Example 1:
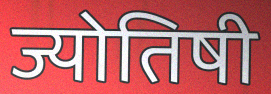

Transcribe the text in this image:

ज्योतिषी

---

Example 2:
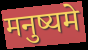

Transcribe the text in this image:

मनुष्यमे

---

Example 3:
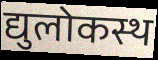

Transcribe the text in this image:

द्युलोकस्थ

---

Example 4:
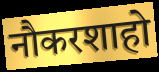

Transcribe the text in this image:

नौकरशाहो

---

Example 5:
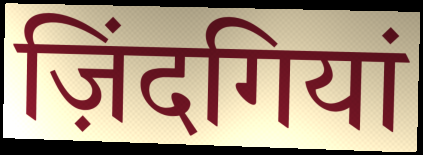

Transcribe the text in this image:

ज़िंदगियां